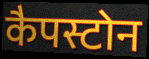
कैपस्टोन